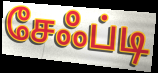
சேஃப்டி